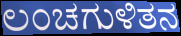
ಲಂಚಗುಳಿತನ